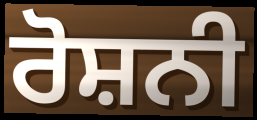
ਰੋਸ਼ਨੀ